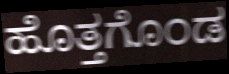
ಹೊತ್ತಗೊಂಡ